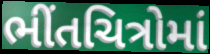
ભીંતચિત્રોમાં